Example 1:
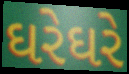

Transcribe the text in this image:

ઘરેઘરે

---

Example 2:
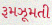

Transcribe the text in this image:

રૂમઝૂમતી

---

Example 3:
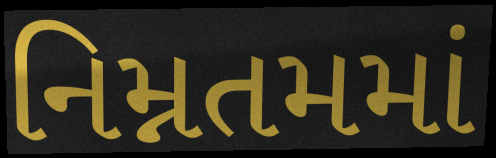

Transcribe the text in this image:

નિમ્નતમમાં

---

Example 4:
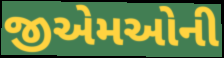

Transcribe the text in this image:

જીએમઓની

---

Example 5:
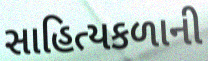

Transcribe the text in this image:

સાહિત્યકળાની